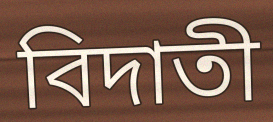
বিদাতী